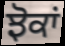
ਝੋਕਾਂ